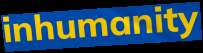
inhumanity